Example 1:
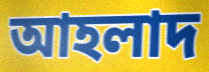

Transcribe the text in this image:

আহলাদ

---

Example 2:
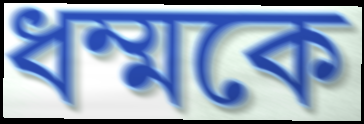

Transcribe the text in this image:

ধম্মকে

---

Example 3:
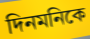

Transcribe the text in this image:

দিনমনিকে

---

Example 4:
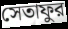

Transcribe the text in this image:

সেতাফুর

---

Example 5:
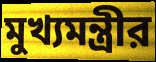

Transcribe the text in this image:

মুখ্যমন্ত্রীর